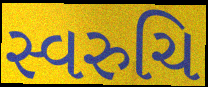
સ્વરુચિ